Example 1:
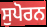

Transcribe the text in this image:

ਸੁਪੋਰਨ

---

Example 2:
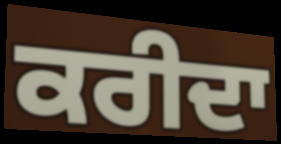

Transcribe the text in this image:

ਕਰੀਦਾ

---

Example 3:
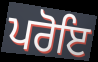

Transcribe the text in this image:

ਪਰੋਇ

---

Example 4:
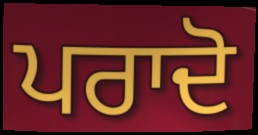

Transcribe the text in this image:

ਪਰਾਦੋ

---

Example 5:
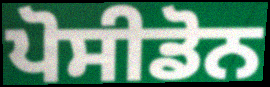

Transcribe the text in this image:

ਪੋਸੀਡੋਨ